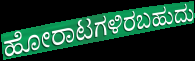
ಹೋರಾಟಗಳಿರಬಹುದು